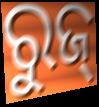
ରୁଜ୍